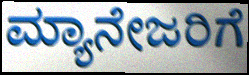
ಮ್ಯಾನೇಜರಿಗೆ